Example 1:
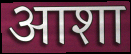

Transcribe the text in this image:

आशा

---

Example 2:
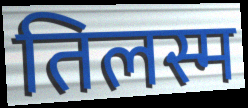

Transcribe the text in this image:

तिलस्म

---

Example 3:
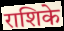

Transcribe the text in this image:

राशिके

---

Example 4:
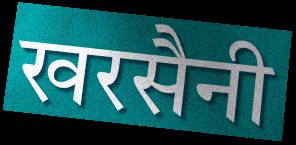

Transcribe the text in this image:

खरसैनी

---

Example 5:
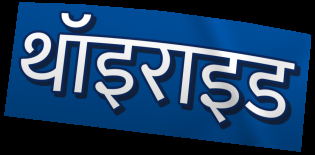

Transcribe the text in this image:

थॉइराइड